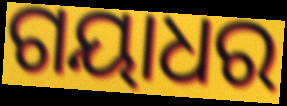
ଗୟାଧର